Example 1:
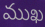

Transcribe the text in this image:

ముఖ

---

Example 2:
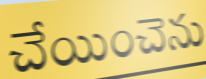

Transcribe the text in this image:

చేయించెను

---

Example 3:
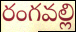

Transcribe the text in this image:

రంగవల్లి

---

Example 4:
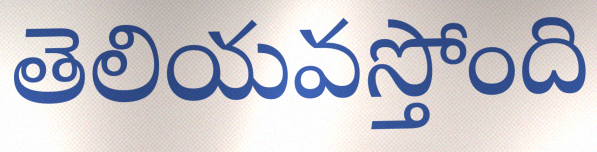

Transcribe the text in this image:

తెలియవస్తోంది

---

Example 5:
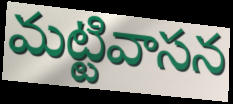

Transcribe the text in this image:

మట్టివాసన